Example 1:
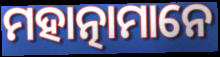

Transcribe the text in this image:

ମହାତ୍ନାମାନେ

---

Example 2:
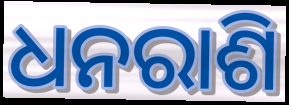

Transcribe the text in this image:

ଧନରାଶି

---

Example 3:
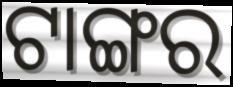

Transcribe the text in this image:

ଟାଙ୍ଗର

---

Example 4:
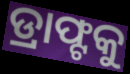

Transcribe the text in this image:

ଡ୍ରାଫ୍ଟକୁ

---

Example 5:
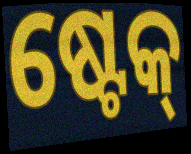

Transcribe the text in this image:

ଷ୍ଟେକ୍